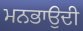
ਮਨਭਾਉਦੀ